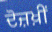
ਦੋਜ਼ਖ਼ੀਂ